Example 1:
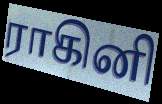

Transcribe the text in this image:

ராகினி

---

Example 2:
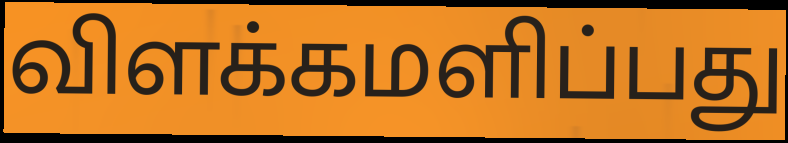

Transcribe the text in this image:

விளக்கமளிப்பது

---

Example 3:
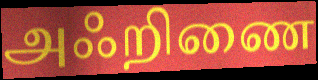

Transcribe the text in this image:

அஃறிணை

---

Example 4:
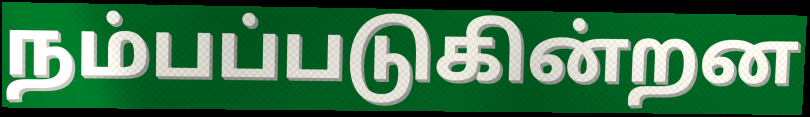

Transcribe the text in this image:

நம்பப்படுகின்றன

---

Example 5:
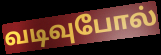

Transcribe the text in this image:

வடிவுபோல்